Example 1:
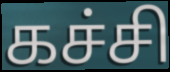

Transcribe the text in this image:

கச்சி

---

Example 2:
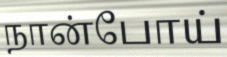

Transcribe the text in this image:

நான்போய்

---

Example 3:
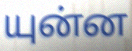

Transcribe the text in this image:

யுன்ன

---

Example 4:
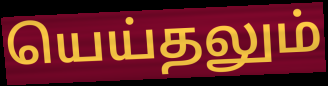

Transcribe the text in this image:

யெய்தலும்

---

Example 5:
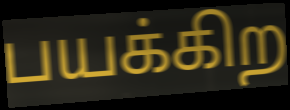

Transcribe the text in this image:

பயக்கிற